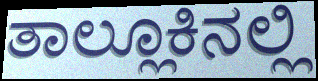
ತಾಲ್ಲೂಕಿನಲ್ಲಿ